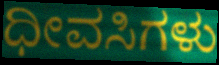
ಧೀವಸಿಗಳು